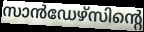
സാൻഡേഴ്സിന്റെ